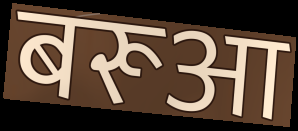
बरूआ